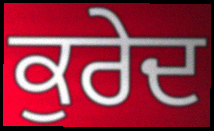
ਕੁਰੇਦ